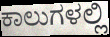
ಕಾಲುಗಳಲ್ಲಿ